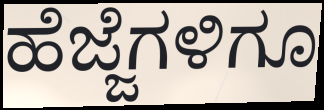
ಹೆಜ್ಜೆಗಳಿಗೂ